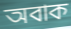
অবাক